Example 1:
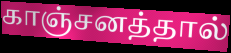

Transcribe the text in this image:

காஞ்சனத்தால்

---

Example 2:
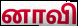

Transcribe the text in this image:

னாவி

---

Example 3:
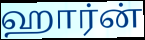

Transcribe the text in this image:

ஹார்ன்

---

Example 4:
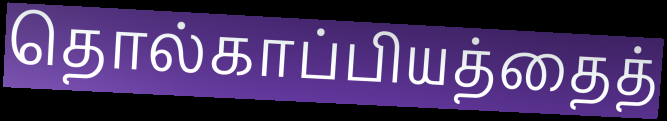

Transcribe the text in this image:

தொல்காப்பியத்தைத்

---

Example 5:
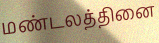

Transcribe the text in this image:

மண்டலத்தினை